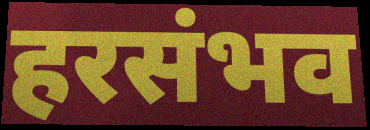
हरसंभव